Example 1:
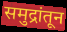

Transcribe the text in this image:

समुद्रांतून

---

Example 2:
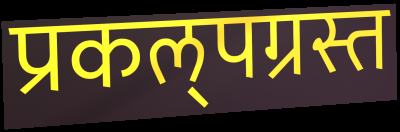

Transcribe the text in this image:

प्रकल्पग्रस्त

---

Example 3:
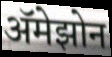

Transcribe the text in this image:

ॲमेझोन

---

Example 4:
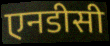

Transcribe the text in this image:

एनडीसी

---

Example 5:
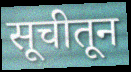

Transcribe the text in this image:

सूचीतून